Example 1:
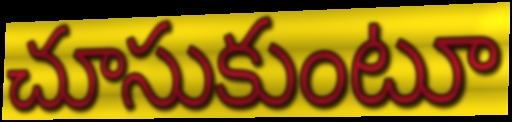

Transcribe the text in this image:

చూసుకుంటూ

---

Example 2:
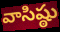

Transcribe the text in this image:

వాసిష్ఠు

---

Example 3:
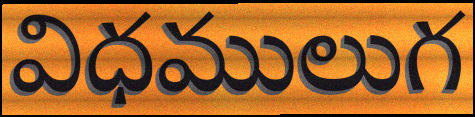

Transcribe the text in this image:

విధములుగ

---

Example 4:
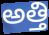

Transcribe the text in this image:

అత్తి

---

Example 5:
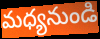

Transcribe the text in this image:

మధ్యనుండి